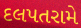
દલપતરામે